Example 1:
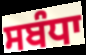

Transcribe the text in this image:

ਸਬੰਧਾ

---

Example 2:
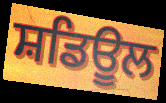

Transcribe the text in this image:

ਸ਼ਡਿਉੂਲ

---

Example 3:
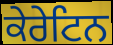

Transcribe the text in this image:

ਕੇਰੇਟਿਨ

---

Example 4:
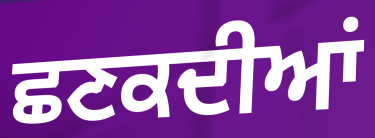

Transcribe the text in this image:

ਛਣਕਦੀਆਂ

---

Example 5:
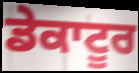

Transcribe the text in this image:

ਡੇਕਾਟੂਰ